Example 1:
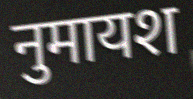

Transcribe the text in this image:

नुमायश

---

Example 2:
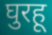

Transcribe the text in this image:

घुरहू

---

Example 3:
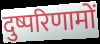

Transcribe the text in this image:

दुष्परिणामों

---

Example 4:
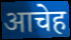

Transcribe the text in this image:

आचेह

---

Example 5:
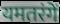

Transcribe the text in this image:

यमतरंगें